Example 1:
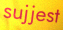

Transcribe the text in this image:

sujjest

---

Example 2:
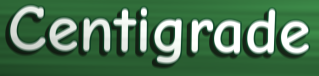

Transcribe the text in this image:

Centigrade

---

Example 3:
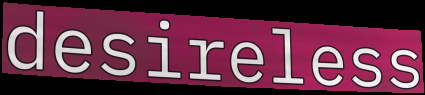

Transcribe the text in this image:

desireless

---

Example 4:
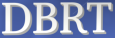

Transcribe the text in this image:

DBRT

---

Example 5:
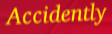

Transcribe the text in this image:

Accidently